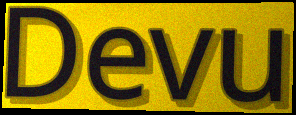
Devu